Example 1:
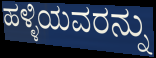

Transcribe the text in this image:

ಹಳ್ಳಿಯವರನ್ನು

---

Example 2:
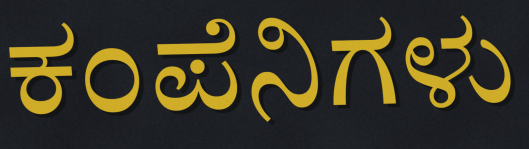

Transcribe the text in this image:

ಕಂಪೆನಿಗಳು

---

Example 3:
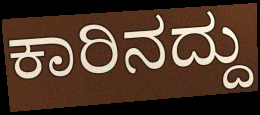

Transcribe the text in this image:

ಕಾರಿನದ್ದು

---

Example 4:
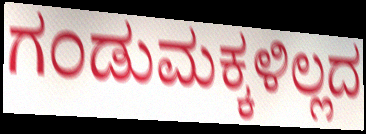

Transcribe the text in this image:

ಗಂಡುಮಕ್ಕಳಿಲ್ಲದ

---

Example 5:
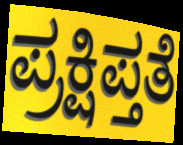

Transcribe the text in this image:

ಪ್ರಕ್ಷಿಪ್ತತೆ